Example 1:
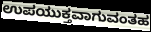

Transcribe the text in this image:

ಉಪಯುಕ್ತವಾಗುವಂತಹ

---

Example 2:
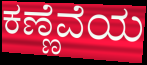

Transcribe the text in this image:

ಕಣ್ಣೆವೆಯ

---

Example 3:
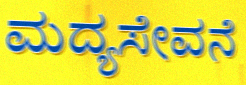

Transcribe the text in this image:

ಮದ್ಯಸೇವನೆ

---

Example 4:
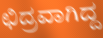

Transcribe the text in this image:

ಛಿದ್ರವಾಗಿದ್ದ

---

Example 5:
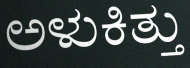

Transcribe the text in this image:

ಅಳುಕಿತ್ತು